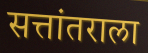
सत्तांतराला